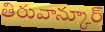
తిరువాన్కూర్